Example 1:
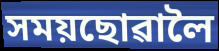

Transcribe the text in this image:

সময়ছোৱালৈ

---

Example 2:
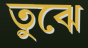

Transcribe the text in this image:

তুঝে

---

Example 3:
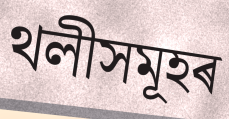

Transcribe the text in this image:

থলীসমূহৰ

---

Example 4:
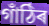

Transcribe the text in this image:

গাঁঠিৰ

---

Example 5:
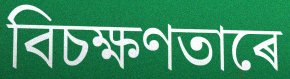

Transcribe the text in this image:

বিচক্ষণতাৰে